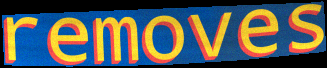
removes